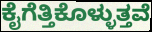
ಕೈಗೆತ್ತಿಕೊಳ್ಳುತ್ತವೆ